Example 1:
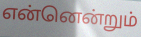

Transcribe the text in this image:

என்னென்றும்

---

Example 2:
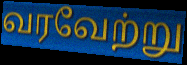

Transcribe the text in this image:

வரவேற்று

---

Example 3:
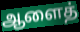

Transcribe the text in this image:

ஆளைத்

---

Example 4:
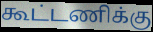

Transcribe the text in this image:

கூட்டணிக்கு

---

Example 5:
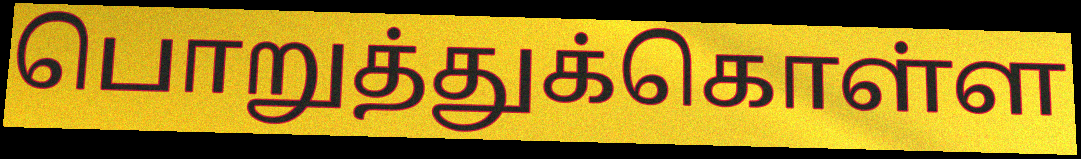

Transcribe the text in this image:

பொறுத்துக்கொள்ள